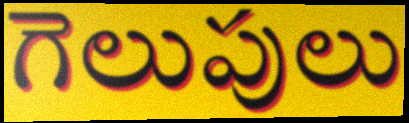
గెలుపులు